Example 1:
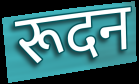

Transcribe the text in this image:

रूदन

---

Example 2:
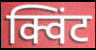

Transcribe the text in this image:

क्विंट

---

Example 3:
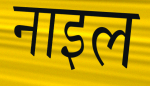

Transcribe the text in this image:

नाइल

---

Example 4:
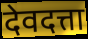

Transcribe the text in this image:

देवदत्ता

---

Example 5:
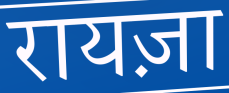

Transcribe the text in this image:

रायज़ा